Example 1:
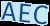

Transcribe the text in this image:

AEC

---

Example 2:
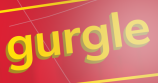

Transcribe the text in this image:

gurgle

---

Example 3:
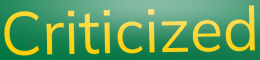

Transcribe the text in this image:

Criticized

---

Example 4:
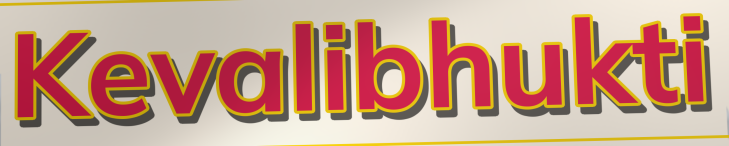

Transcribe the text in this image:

Kevalibhukti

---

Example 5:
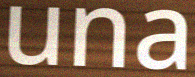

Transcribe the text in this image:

una